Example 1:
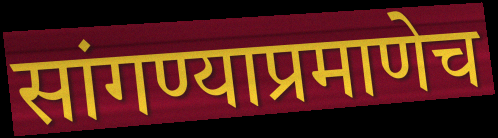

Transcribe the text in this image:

सांगण्याप्रमाणेच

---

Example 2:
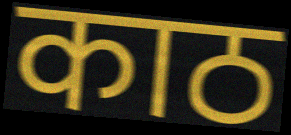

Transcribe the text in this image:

काठ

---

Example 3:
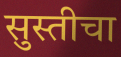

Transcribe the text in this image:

सुस्तीचा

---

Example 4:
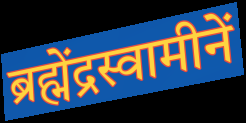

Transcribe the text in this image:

ब्रह्मेंद्रस्वामीनें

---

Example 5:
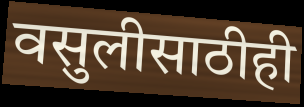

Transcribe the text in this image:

वसुलीसाठीही